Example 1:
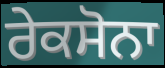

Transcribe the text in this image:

ਰੇਕਸੋਨਾ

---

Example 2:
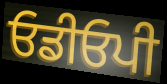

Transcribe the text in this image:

ਓਡੀਓਪੀ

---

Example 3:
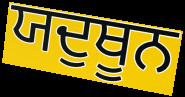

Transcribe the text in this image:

ਯਦੁਥੂਨ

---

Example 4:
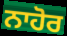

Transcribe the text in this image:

ਨਾਹੋਰ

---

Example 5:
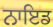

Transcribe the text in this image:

ਨਾਇਡ